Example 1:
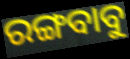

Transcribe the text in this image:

ରଙ୍ଗବାବୁ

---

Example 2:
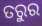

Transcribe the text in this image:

ତରୁର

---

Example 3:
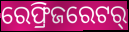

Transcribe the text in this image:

ରେଫ୍ରିଜରେଟର୍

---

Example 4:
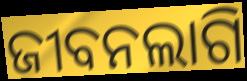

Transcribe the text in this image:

ଜୀବନଲାଗି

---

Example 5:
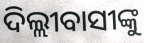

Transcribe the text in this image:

ଦିଲ୍ଲୀବାସୀଙ୍କୁ